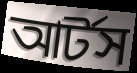
আর্টস